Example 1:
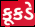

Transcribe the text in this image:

કૂકડે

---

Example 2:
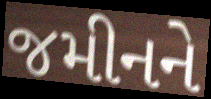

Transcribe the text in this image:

જમીનને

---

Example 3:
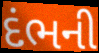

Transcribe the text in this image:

દંભની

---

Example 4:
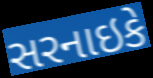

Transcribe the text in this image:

સરનાઇકે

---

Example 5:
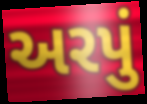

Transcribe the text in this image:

અરપું